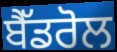
ਬੈੱਡਰੋਲ